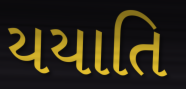
યયાતિ